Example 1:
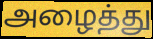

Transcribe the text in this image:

அழைத்து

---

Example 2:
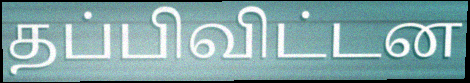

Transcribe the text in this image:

தப்பிவிட்டன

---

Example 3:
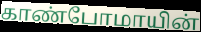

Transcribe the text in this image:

காண்போமாயின்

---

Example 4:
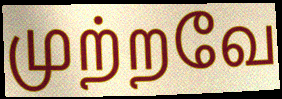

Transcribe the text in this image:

முற்றவே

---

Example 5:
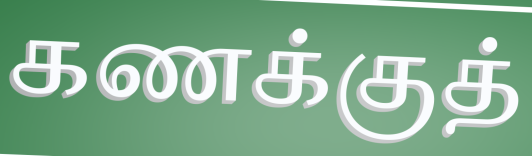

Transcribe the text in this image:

கணக்குத்